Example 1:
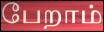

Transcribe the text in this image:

பேறாம்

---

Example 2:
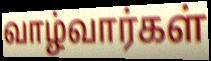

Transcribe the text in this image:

வாழ்வார்கள்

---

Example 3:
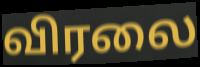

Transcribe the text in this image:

விரலை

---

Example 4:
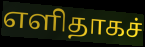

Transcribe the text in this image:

எளிதாகச்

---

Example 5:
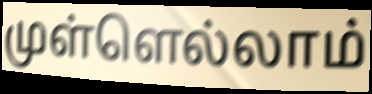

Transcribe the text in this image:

முள்ளெல்லாம்